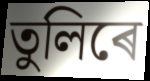
তুলিৰে